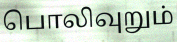
பொலிவுறும்